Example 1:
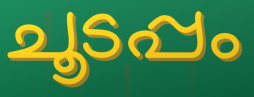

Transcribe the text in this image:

ചൂടപ്പം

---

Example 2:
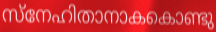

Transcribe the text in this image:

സ്നേഹിതാനാകകൊണ്ടു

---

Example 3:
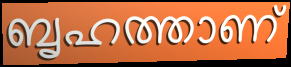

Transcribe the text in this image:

ബൃഹത്താണ്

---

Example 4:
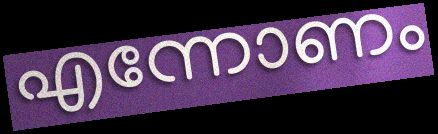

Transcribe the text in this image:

എന്നോണം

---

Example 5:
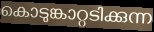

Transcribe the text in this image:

കൊടുങ്കാറ്റടിക്കുന്ന